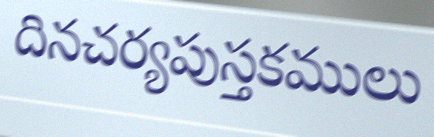
దినచర్యపుస్తకములు